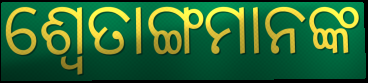
ଶ୍ଵେତାଙ୍ଗମାନଙ୍କ